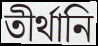
তীর্থানি